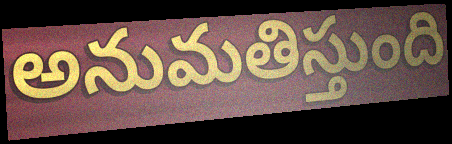
అనుమతిస్తుంది